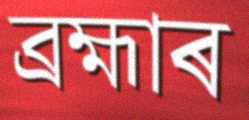
ব্ৰহ্মাৰ